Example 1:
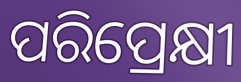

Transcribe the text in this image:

ପରିପ୍ରେକ୍ଷୀ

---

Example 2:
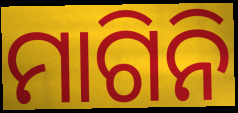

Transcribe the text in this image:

ମାଗିନି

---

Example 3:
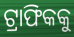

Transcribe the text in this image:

ଟ୍ରାଫିକକୁ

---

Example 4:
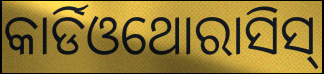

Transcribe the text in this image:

କାର୍ଡିଓଥୋରାସିସ୍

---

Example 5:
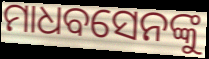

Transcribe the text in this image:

ମାଧବସେନଙ୍କୁ